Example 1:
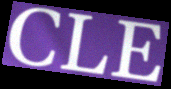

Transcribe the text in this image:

CLE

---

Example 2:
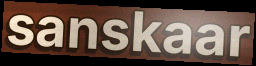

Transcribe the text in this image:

sanskaar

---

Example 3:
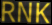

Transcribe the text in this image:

RNK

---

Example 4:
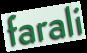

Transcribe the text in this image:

farali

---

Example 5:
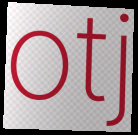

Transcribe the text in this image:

otj